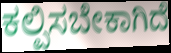
ಕಲ್ಪಿಸಬೇಕಾಗಿದೆ